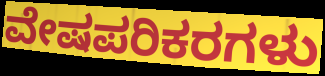
ವೇಷಪರಿಕರಗಳು